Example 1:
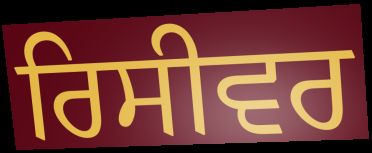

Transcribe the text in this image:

ਰਿਸੀਵਰ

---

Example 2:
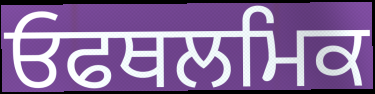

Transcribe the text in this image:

ਓਫਥਲਮਿਕ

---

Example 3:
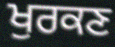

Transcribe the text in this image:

ਖੁਰਕਣ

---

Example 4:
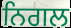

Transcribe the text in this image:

ਨਿਗਲ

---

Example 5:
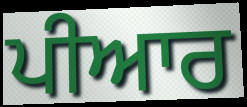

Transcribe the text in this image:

ਪੀਆਰ